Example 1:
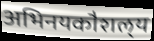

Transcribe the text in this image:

अभिनयकौशल्य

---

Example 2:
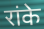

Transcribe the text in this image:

रांके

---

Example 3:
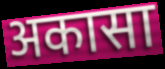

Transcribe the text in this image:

अकासा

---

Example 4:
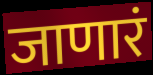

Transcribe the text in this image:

जाणारं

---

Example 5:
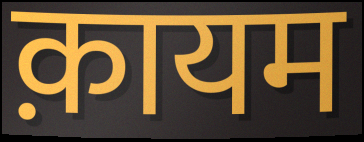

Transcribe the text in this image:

क़ायम